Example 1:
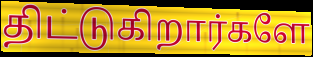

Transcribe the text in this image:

திட்டுகிறார்களே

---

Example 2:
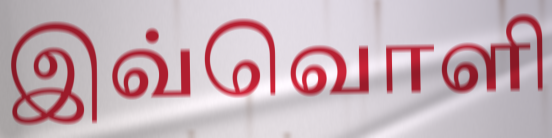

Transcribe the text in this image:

இவ்வொளி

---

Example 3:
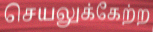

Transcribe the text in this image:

செயலுக்கேற்ற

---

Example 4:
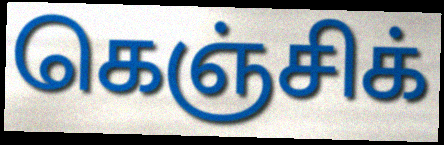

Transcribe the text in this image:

கெஞ்சிக்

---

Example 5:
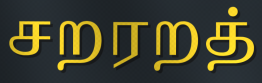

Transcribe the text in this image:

சறரறத்